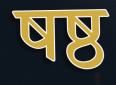
षष्ठ